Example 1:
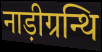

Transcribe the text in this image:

नाड़ीग्रन्थि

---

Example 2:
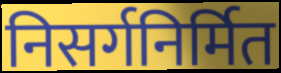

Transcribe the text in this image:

निसर्गनिर्मित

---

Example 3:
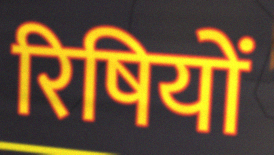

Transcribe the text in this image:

रिषियों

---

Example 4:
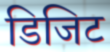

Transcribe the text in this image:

डिजिट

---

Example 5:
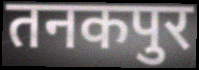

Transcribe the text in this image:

तनकपुर